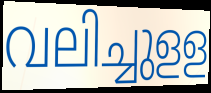
വലിച്ചുളള